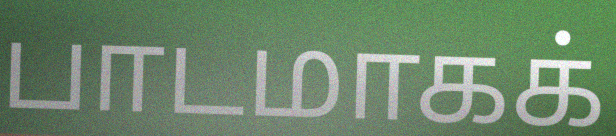
பாடமாகக்